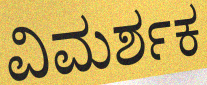
ವಿಮರ್ಶಕ